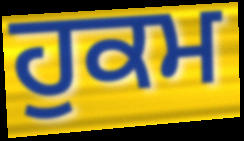
ਹੁਕਮ